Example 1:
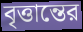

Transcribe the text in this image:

বৃত্তান্তের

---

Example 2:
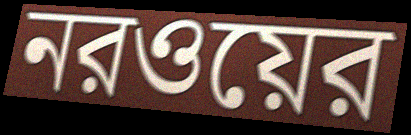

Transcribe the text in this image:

নরওয়ের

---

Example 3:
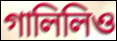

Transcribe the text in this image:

গালিলিও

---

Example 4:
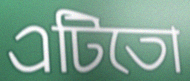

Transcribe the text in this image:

এটিতো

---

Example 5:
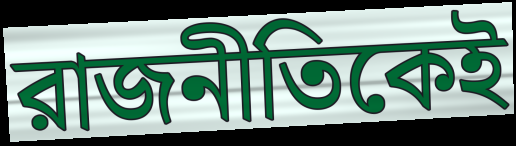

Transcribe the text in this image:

রাজনীতিকেই